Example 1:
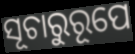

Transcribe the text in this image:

ସୂଚାରୁରୂପେ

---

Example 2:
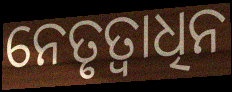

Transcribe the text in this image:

ନେତୃତ୍ୱାଧିନ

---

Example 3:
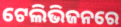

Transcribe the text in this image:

ଟେଲିଭିଜନରେ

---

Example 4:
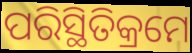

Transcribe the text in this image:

ପରିସ୍ଥିତିକ୍ରମେ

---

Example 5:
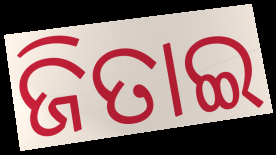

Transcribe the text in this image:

ଜିତାଇ